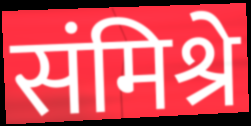
संमिश्रे